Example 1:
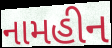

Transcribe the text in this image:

નામહીન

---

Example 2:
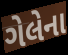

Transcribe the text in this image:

ગેલેના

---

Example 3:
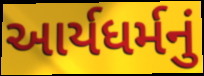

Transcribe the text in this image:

આર્યધર્મનું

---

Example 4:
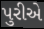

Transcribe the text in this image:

પુરીએ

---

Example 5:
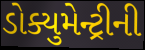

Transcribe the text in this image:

ડોક્યુમેન્ટ્રીની